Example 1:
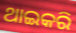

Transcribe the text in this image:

ଥାଇକରି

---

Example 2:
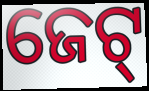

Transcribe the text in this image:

ଜେଟ୍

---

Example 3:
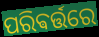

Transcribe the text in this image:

ପରିଵର୍ତ୍ତରେ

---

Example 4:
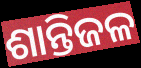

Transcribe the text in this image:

ଶାନ୍ତିଜଳ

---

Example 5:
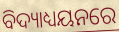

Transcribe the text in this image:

ବିଦ୍ୟାଧ୍ୟୟନରେ